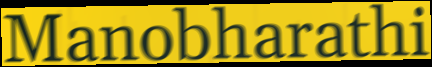
Manobharathi